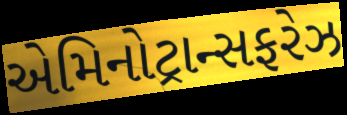
એમિનોટ્રાન્સફરેઝ